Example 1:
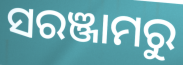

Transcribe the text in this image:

ସରଞ୍ଜାମରୁ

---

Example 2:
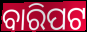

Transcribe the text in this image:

ବାରିପଟ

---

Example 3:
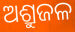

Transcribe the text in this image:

ଅଶ୍ରୁଜଳ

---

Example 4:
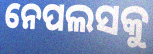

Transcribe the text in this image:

ନେପଲସକୁ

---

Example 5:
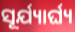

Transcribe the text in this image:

ସୂର୍ଯ୍ୟାର୍ଘ୍ୟ